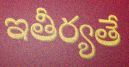
ఇతీర్యతే